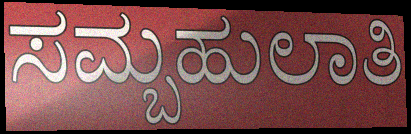
ಸಮ್ಬಹುಲಾತಿ